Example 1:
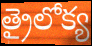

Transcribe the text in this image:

త్రైలోక్య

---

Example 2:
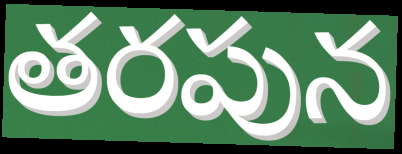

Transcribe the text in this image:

తరపున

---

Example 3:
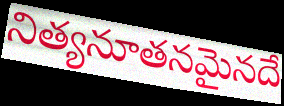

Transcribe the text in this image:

నిత్యనూతనమైనదే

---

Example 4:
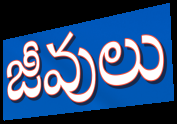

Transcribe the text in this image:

జీవులు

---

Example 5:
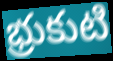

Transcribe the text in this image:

భ్రుకుటి